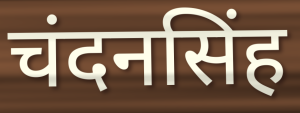
चंदनसिंह